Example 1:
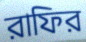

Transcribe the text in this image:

রাফির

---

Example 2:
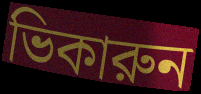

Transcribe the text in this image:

ভিকারুন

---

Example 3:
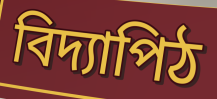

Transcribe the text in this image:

বিদ্যাপিঠ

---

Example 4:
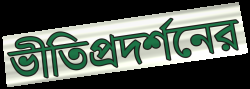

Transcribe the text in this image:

ভীতিপ্রদর্শনের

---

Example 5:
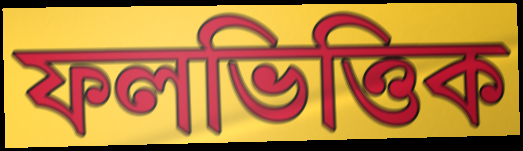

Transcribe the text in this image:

ফলভিত্তিক